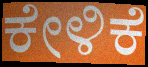
ಕೇಳಿಕೆ